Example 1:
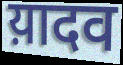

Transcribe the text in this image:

य़ादव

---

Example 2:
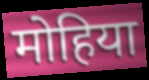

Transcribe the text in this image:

मोहिया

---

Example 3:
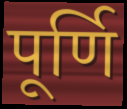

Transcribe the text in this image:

पूर्णि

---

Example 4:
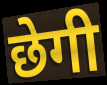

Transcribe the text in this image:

छेगी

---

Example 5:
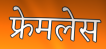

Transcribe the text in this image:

फ्रेमलेस